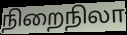
நிறைநிலா